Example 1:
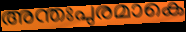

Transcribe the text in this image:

അന്തഃപുരമാകെ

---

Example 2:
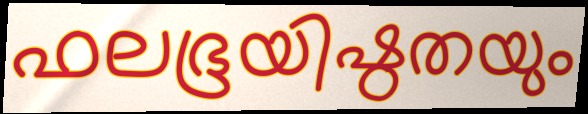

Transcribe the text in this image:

ഫലഭൂയിഷ്ഠതയും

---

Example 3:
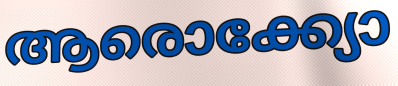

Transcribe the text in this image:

ആരൊക്ക്യോ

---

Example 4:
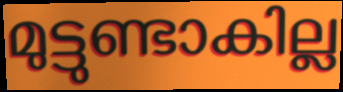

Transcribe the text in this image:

മുട്ടുണ്ടാകില്ല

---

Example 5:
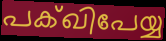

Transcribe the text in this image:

പക്ഖിപേയ്യ